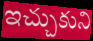
ఇచ్చుకుని